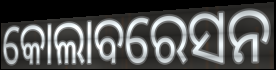
କୋଲାବରେସନ